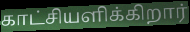
காட்சியளிக்கிறார்